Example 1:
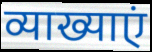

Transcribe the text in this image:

व्याख्याएं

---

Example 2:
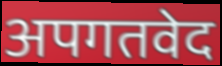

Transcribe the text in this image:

अपगतवेद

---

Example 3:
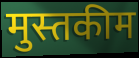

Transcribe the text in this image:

मुस्तकीम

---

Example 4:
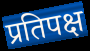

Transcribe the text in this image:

प्रतिपक्ष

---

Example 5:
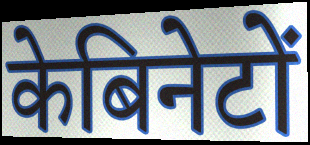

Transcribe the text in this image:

केबिनेटों